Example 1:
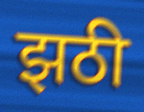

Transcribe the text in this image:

झठी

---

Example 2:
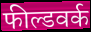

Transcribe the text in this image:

फील्डवर्क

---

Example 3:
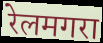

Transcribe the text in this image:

रेलमगरा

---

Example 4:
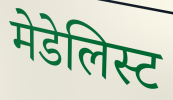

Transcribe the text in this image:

मेडेलिस्ट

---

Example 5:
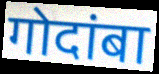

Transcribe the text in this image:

गोदांबा